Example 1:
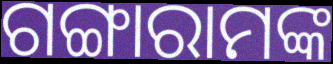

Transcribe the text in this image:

ଗଙ୍ଗାରାମଙ୍କ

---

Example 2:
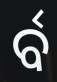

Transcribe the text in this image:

ର୍ବ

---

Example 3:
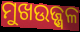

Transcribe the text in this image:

ମୁଖଉଜ୍ଜ୍ୱଳ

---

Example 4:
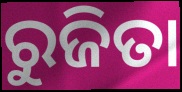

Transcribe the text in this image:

ରୁଜିତା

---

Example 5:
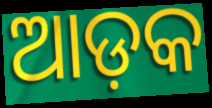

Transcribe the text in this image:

ଆଡ଼କ